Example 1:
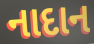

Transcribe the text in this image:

નાદાન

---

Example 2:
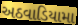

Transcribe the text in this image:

અઠવાડિયામા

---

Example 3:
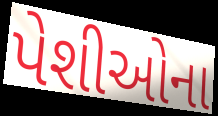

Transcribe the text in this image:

પેશીઓના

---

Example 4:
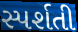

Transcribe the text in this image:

સ્પર્શતી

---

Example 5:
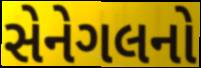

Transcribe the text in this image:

સેનેગલનો